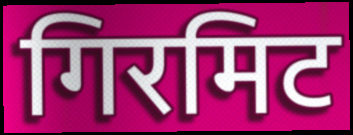
गिरमिट